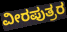
ವೀರಪುತ್ರರ